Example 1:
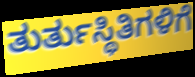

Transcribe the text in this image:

ತುರ್ತುಸ್ಥಿತಿಗಳಿಗೆ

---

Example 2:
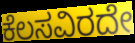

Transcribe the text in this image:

ಕೆಲಸವಿರದೇ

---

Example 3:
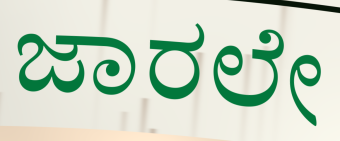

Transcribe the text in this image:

ಜಾರಲೇ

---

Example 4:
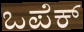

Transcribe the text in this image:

ಒಪೆಕ್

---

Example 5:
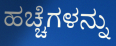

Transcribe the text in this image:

ಹಚ್ಚೆಗಳನ್ನು